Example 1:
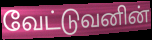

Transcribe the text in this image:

வேட்டுவனின்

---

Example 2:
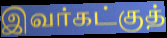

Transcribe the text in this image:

இவர்கட்குத்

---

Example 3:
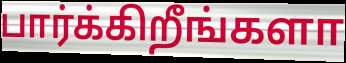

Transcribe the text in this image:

பார்க்கிறீங்களா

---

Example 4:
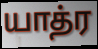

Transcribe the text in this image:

யாத்ர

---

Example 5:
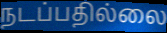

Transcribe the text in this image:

நடப்பதில்லை